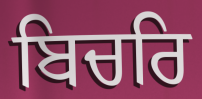
ਬਿਚਰਿ